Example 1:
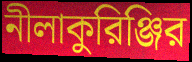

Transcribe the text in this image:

নীলাকুরিঞ্জির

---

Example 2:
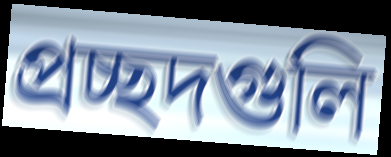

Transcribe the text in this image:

প্রচ্ছদগুলি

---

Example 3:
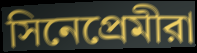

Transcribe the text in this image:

সিনেপ্রেমীরা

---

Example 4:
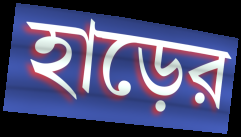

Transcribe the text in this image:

হাড়ের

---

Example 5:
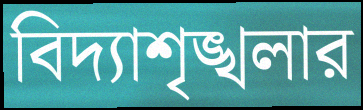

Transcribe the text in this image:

বিদ্যাশৃঙ্খলার